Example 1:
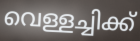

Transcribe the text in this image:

വെള്ളച്ചിക്ക്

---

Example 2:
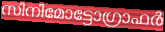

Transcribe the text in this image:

സിനിമോട്ടോഗ്രാഫർ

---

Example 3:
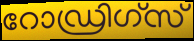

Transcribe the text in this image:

റോഡ്രിഗ്സ്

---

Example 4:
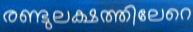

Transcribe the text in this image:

രണ്ടുലക്ഷത്തിലേറെ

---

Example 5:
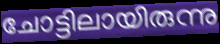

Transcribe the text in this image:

ചോട്ടിലായിരുന്നു